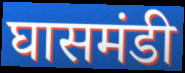
घासमंडी